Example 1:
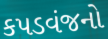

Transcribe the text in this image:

કપડવંજનો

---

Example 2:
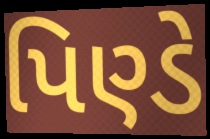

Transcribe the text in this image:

પિણ્ડે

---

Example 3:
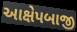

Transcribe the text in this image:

આક્ષેપબાજી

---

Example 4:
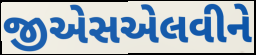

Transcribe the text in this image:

જીએસએલવીને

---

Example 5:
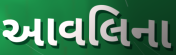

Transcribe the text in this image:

આવલિના